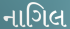
નાગિલ